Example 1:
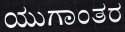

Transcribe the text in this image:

ಯುಗಾಂತರ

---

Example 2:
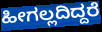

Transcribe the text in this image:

ಹೀಗಲ್ಲದಿದ್ದರೆ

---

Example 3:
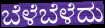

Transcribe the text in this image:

ಬೆಳೆಬೆಳೆದು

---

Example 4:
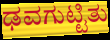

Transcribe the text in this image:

ಢವಗುಟ್ಟಿತು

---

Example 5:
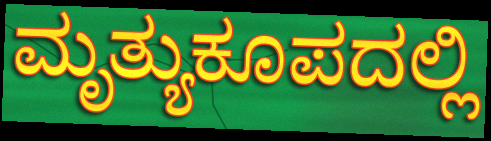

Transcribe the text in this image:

ಮೃತ್ಯುಕೂಪದಲ್ಲಿ